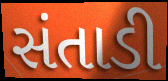
સંતાડી